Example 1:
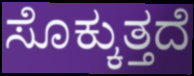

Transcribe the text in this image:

ಸೊಕ್ಕುತ್ತದೆ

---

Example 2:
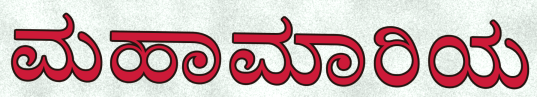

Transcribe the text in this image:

ಮಹಾಮಾರಿಯ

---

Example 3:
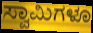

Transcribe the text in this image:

ಸ್ವಾಮಿಗಳೂ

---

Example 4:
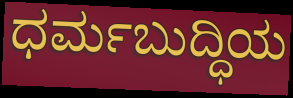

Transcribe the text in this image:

ಧರ್ಮಬುದ್ಧಿಯ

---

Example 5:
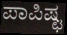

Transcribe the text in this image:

ಪಾಪಿಷ್ಟ